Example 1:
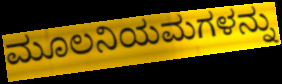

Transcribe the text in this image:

ಮೂಲನಿಯಮಗಳನ್ನು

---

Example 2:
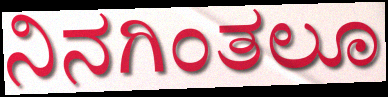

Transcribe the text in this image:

ನಿನಗಿಂತಲೂ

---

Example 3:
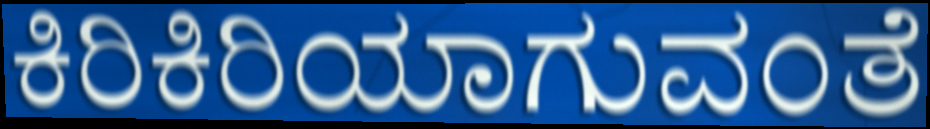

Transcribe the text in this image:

ಕಿರಿಕಿರಿಯಾಗುವಂತೆ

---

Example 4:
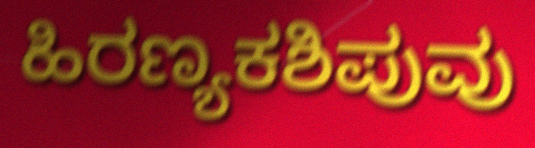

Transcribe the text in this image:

ಹಿರಣ್ಯಕಶಿಪುವು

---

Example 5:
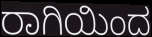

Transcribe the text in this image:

ರಾಗಿಯಿಂದ